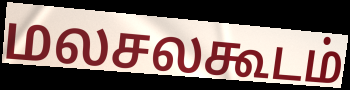
மலசலகூடம்